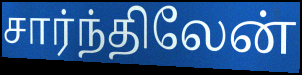
சார்ந்திலேன்